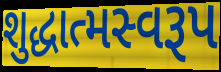
શુદ્ધાત્મસ્વરૂપ